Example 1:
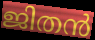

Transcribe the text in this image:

ജിതൻ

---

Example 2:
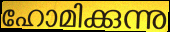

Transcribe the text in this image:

ഹോമിക്കുന്നു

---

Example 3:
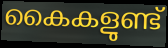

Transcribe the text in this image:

കൈകളുണ്ട്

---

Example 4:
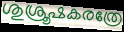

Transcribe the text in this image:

ശുശ്രൂഷകരത്രേ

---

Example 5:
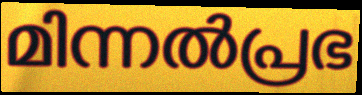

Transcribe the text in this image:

മിന്നൽപ്രഭ